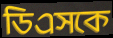
ডিএসকে